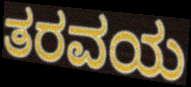
ತರವಯ